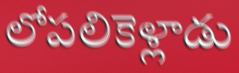
లోపలికెళ్లాడు